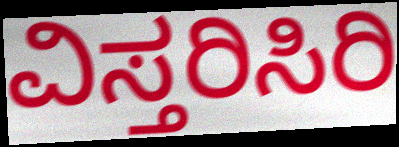
ವಿಸ್ತರಿಸಿರಿ